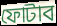
ফোটাব